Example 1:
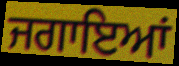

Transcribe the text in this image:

ਜਗਾਇਆਂ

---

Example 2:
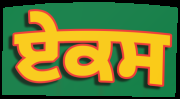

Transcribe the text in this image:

ਏਕਸ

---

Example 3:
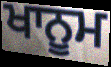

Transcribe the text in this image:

ਖਾਨੂਮ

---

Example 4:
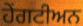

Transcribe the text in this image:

ਹੇਂਗਟੀਅਨ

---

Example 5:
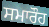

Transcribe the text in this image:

ਸਮਾਰੌਹ